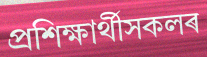
প্ৰশিক্ষাৰ্থীসকলৰ